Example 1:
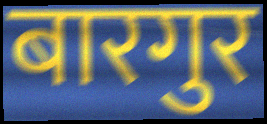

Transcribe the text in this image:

बारगुर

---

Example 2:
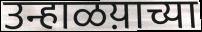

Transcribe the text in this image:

उन्हाळय़ाच्या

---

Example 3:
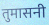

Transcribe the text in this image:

तुमासनी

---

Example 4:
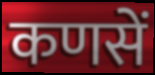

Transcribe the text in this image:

कणसें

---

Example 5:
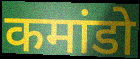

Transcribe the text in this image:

कमांडो